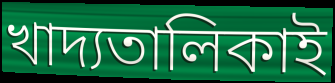
খাদ্যতালিকাই